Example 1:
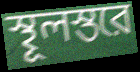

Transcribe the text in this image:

স্থূলস্তরে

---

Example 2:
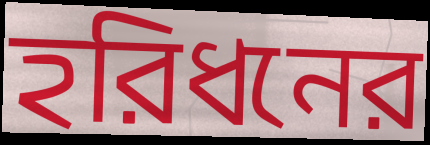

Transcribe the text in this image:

হরিধনের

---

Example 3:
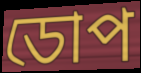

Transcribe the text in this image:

ডোপ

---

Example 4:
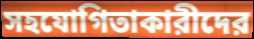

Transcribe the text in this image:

সহযোগিতাকারীদের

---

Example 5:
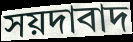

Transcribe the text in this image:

সয়দাবাদ